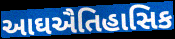
આઘઐતિહાસિક